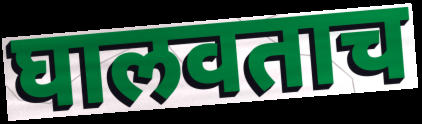
घालवताच